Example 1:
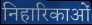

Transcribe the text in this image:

निहारिकाओं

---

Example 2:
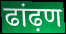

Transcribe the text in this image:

ढांढ़ण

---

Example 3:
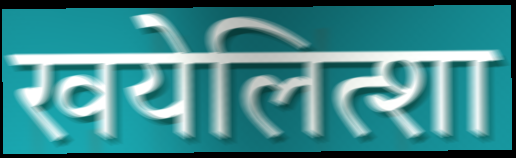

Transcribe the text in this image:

खयेलित्शा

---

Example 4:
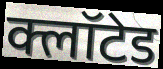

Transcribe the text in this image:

क्लॉटेड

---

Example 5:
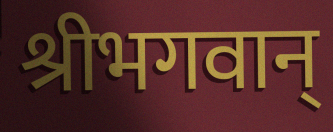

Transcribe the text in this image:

श्रीभगवान्